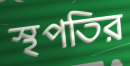
স্থপতির